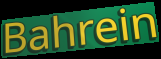
Bahrein